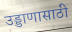
उड्डाणासाठी